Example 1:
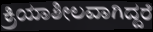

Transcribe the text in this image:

ಕ್ರಿಯಾಶೀಲವಾಗಿದ್ದರೆ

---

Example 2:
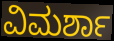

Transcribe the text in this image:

ವಿಮರ್ಶಾ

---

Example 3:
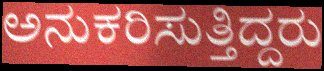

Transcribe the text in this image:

ಅನುಕರಿಸುತ್ತಿದ್ದರು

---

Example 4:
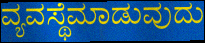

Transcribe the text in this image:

ವ್ಯವಸ್ಥೆಮಾಡುವುದು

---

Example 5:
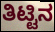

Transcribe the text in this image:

ತಿಟ್ಟಿನ